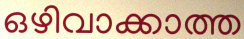
ഒഴിവാക്കാത്ത